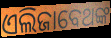
ଏଲିଜାବେଥଙ୍କ